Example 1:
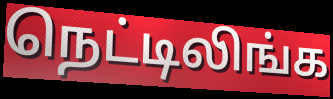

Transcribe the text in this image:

நெட்டிலிங்க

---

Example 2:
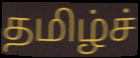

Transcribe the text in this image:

தமிழ்ச்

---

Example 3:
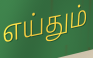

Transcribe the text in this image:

எய்தும்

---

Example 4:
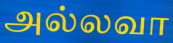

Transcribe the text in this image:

அல்லவா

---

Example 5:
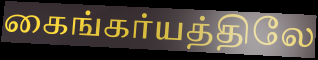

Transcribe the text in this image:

கைங்கர்யத்திலே